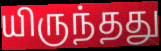
யிருந்தது